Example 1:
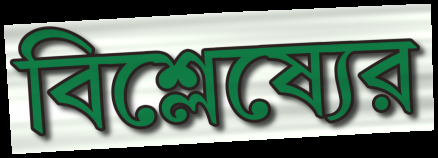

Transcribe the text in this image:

বিশ্লেষ্যের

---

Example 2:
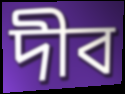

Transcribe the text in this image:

দীব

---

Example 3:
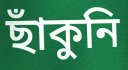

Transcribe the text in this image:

ছাঁকুনি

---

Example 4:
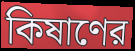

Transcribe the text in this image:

কিষাণের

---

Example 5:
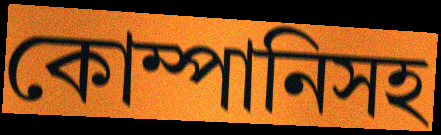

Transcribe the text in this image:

কোম্পানিসহ